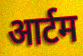
आर्टम